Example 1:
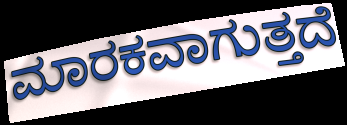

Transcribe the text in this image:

ಮಾರಕವಾಗುತ್ತದೆ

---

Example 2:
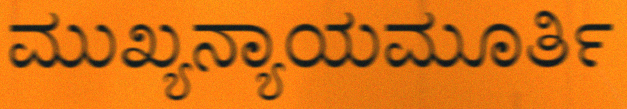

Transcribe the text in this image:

ಮುಖ್ಯನ್ಯಾಯಮೂರ್ತಿ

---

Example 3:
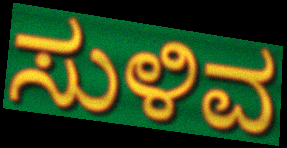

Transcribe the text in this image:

ಸುಳಿವ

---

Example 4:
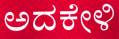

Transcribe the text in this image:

ಅದಕೇಳಿ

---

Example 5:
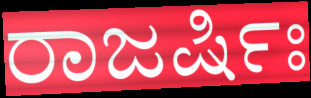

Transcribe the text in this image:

ರಾಜರ್ಷಿಃ